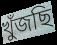
খুঁজছি